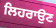
ਲਿਹਰਾਉਣ